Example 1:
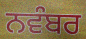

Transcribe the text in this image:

ਨਵੰਬਰ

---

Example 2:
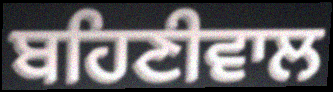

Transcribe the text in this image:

ਬਹਿਣੀਵਾਲ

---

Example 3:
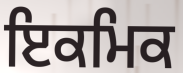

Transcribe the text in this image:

ਇਕਮਿਕ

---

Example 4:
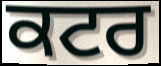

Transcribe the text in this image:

ਕਟਰ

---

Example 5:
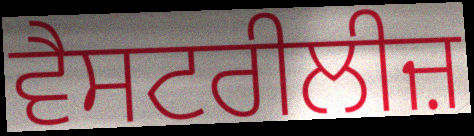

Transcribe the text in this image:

ਵੈਸਟਰੀਲੀਜ਼